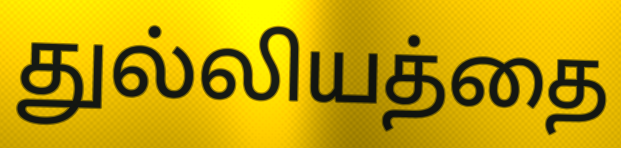
துல்லியத்தை